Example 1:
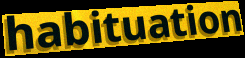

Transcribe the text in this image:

habituation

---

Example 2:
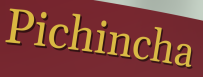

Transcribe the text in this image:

Pichincha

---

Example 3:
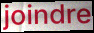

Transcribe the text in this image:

joindre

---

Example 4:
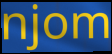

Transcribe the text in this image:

njom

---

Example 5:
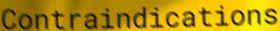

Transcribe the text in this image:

Contraindications